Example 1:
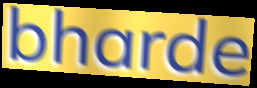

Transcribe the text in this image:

bharde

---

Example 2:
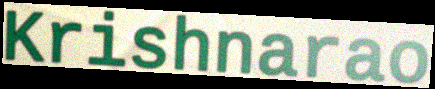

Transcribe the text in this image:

Krishnarao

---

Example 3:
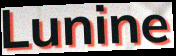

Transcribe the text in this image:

Lunine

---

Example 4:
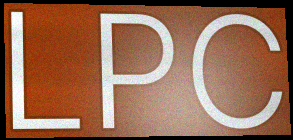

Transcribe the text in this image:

LPC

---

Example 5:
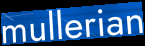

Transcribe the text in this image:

mullerian